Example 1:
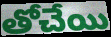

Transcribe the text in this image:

తోచేయి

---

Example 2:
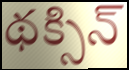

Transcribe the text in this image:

థక్సిన్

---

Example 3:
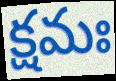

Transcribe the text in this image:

క్షమః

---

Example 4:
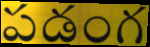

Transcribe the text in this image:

పడంగ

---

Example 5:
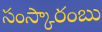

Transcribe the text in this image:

సంస్కారంబు